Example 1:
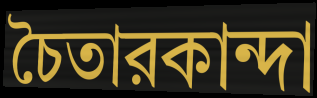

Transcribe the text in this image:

চৈতারকান্দা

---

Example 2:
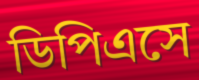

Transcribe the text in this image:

ডিপিএসে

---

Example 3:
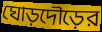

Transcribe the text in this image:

ঘোড়দৌড়ের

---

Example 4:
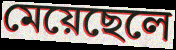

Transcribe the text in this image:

মেয়েছেলে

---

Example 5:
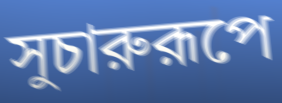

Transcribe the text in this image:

সুচারুরূপে